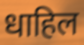
धाहिल